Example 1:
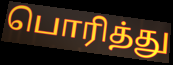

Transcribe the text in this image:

பொரித்து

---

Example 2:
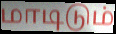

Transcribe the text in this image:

மாடிடும்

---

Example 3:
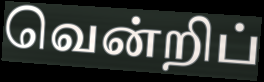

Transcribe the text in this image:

வென்றிப்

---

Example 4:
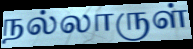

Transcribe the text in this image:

நல்லாருள்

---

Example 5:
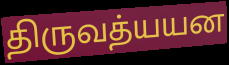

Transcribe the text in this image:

திருவத்யயன